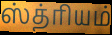
ஸ்த்ரியம்